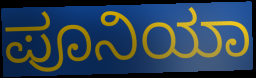
ಪೂನಿಯಾ